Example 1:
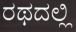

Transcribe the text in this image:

ರಥದಲ್ಲಿ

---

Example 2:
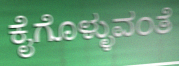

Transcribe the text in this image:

ಕೈಗೊಳ್ಳುವಂತೆ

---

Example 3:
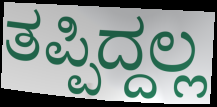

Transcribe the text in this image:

ತಪ್ಪಿದ್ದಲ್ಲ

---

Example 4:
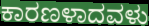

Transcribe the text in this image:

ಕಾರಣಳಾದವಳು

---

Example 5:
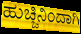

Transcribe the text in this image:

ಹುಚ್ಚಿನಿಂದಾಗಿ